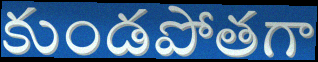
కుండపోతగా